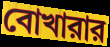
বোখারার